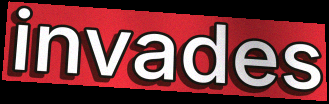
invades